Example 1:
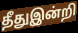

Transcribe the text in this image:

தீதுஇன்றி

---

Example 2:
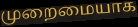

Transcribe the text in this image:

முறைமையாக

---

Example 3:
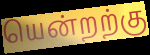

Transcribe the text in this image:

யென்றற்கு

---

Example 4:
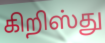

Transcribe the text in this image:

கிறிஸ்து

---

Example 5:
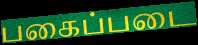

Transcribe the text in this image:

பகைப்படை